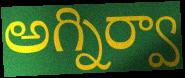
అగ్నిర్వా